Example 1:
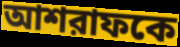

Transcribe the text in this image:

আশরাফকে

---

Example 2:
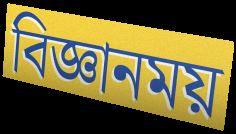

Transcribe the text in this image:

বিজ্ঞানময়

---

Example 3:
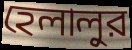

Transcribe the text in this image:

হেলালুর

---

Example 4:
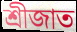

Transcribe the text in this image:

শ্রীজাত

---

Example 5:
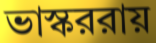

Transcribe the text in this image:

ভাস্কররায়